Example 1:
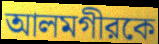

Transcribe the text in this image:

আলমগীরকে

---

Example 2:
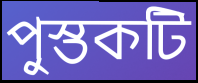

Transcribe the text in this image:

পুস্তকটি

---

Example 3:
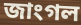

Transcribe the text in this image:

জাংগল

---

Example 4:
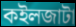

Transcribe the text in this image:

কইলজাটা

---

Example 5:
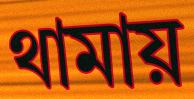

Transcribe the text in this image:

থামায়